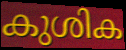
കുശിക